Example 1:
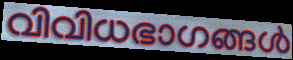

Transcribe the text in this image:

വിവിധഭാഗങ്ങൾ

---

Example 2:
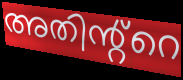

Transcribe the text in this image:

അതിന്റ്റെ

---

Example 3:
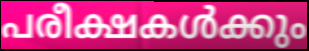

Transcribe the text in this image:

പരീക്ഷകൾക്കും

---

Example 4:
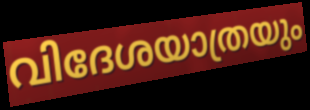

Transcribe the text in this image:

വിദേശയാത്രയും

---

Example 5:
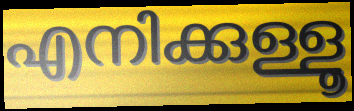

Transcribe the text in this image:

എനിക്കുള്ളൂ